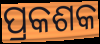
ପ୍ରକଶକ